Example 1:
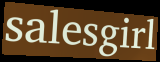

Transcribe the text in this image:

salesgirl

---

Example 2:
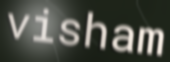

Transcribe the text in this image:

visham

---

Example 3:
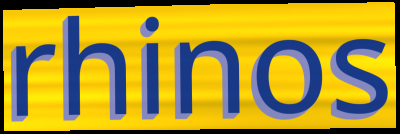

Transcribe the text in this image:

rhinos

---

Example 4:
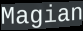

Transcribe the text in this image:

Magian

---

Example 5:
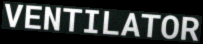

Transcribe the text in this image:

VENTILATOR